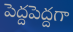
పెద్దపెద్దగా